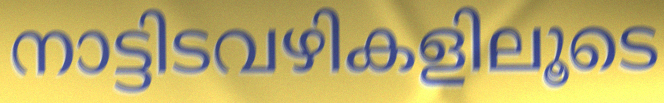
നാട്ടിടവഴികളിലൂടെ